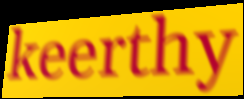
keerthy